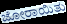
ಜೋರಾಯಿತು